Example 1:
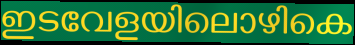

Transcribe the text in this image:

ഇടവേളയിലൊഴികെ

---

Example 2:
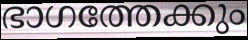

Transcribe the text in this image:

ഭാഗത്തേക്കും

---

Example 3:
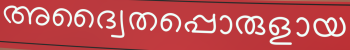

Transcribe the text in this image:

അദ്വൈതപ്പൊരുളായ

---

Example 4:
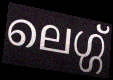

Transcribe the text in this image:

ലെഗ്ഗ്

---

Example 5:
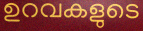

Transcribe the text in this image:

ഉറവകളുടെ